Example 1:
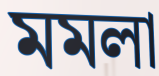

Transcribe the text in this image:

মমলা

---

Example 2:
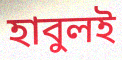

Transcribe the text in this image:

হাবুলই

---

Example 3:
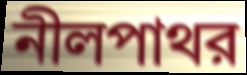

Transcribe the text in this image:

নীলপাথর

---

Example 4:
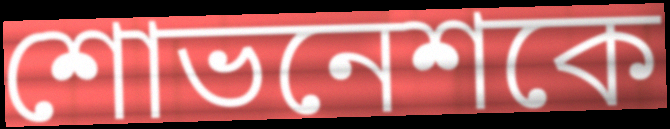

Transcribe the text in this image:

শোভনেশকে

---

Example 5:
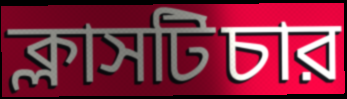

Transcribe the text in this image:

ক্লাসটিচার